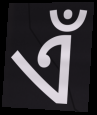
ଏଁ